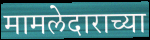
मामलेदाराच्या